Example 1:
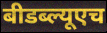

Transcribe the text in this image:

बीडब्ल्यूएच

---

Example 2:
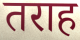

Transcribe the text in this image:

तराह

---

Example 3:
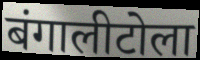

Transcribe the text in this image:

बंगालीटोला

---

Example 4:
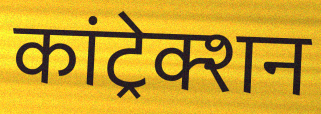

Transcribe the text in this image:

कांट्रेक्शन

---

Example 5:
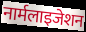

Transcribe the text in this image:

नार्मलाइजेशन